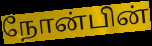
நோன்பின்